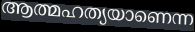
ആത്മഹത്യയാണെന്ന